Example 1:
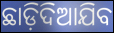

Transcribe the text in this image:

ଛାଡ଼ିଦିଆଯିବ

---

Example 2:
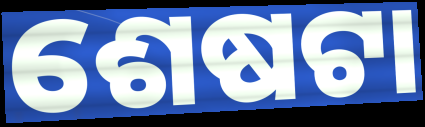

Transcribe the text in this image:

ଶେଷଟା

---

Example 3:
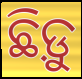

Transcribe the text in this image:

ଛିଡ଼ୁ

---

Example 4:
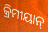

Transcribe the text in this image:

କ୍ରିମୀୟାନ୍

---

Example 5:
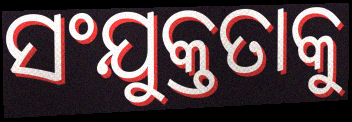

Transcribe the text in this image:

ସଂଯୁକ୍ତତାକୁ